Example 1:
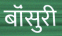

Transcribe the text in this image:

बॉंसुरी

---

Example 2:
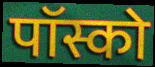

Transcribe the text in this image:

पॉस्‍को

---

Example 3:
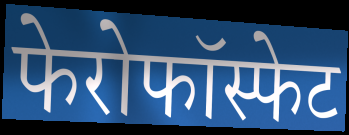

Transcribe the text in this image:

फेरोफॉस्फेट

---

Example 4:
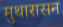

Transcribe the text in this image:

मुथारासन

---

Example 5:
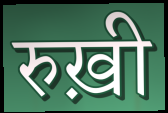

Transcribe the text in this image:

रुख़ी